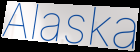
Alaska